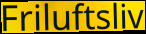
Friluftsliv